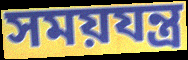
সময়যন্ত্র